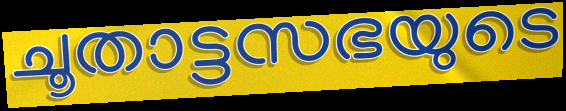
ചൂതാട്ടസഭയുടെ